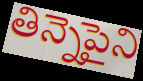
తిన్నెపైని